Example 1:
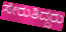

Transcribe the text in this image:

ಸೇರುತಿದ್ದರು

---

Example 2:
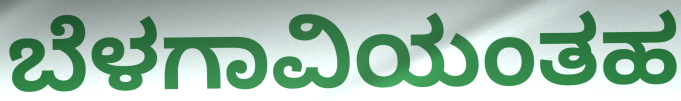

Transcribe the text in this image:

ಬೆಳಗಾವಿಯಂತಹ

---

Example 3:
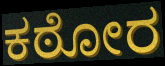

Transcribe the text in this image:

ಕಠೋರ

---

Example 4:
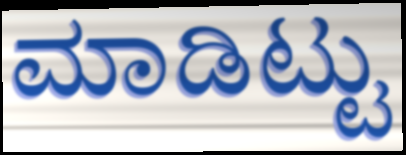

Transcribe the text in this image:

ಮಾಡಿಟ್ಟು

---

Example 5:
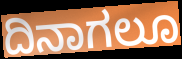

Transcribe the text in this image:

ದಿನಾಗಲೂ